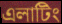
এলাটিং